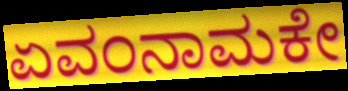
ಏವಂನಾಮಕೇ